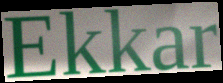
Ekkar